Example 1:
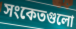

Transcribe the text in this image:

সংকেতগুলো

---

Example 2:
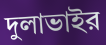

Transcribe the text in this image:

দুলাভাইর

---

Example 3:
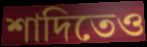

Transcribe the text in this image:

শাদিতেও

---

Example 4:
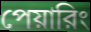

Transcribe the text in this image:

পেয়ারিং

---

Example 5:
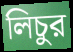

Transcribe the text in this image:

লিচুর